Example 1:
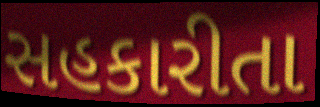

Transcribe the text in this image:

સહકારીતા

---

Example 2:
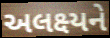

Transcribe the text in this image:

અલક્ષ્યને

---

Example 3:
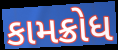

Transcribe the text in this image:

કામક્રોધ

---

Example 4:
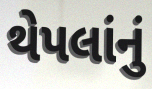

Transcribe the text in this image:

થેપલાંનું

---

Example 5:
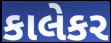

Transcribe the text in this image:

કાલેકર